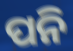
ପନି